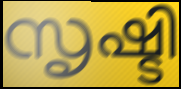
സൃഷ്ടി